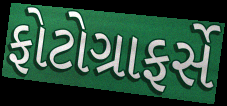
ફોટોગ્રાફર્સે